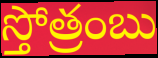
స్తోత్రంబు